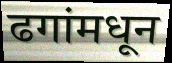
ढगांमधून